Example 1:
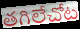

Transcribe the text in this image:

తగిలేచోట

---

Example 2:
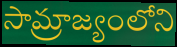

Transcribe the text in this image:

సామ్రాజ్యంలోని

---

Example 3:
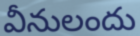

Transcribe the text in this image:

వీనులందు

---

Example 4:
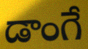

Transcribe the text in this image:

డాంగే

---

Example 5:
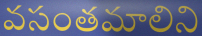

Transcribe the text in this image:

వసంతమాలిని